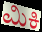
ಮಿಕಿ